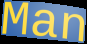
Man